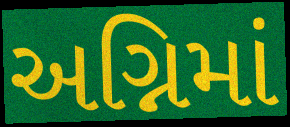
અગ્નિમાં